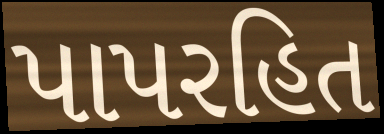
પાપરહિત